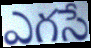
ఎగసే